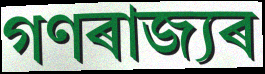
গণৰাজ্যৰ